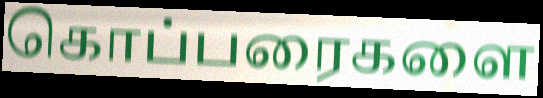
கொப்பரைகளை